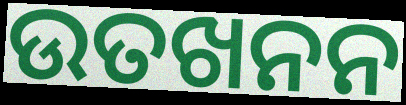
ଉତଖନନ